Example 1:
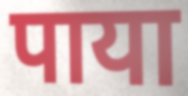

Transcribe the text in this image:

पाया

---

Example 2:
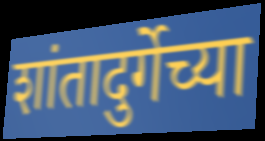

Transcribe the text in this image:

शांतादुर्गेच्या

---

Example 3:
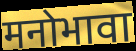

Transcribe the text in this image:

मनोभावा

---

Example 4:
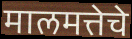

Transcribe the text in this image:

मालमत्तेचे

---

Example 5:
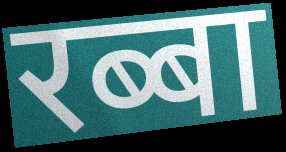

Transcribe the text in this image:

रब्बा